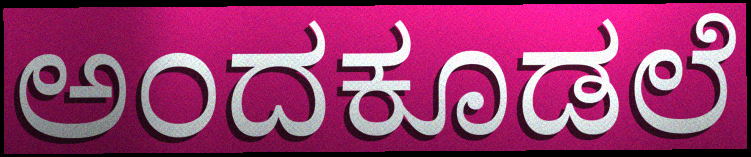
ಅಂದಕೂಡಲೆ